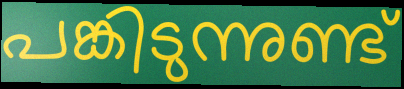
പങ്കിടുന്നുണ്ട്